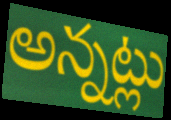
అన్నట్లు